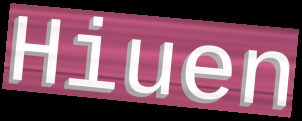
Hiuen